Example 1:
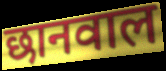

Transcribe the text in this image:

छानवाल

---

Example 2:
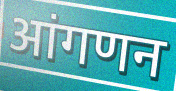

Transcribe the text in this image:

आंगणन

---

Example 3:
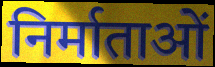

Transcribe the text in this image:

निर्माताओं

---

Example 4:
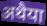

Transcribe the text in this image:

अथैया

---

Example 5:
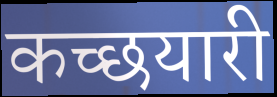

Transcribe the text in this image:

कच्छयारी